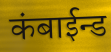
कंबाईन्ड